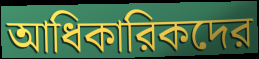
আধিকারিকদের